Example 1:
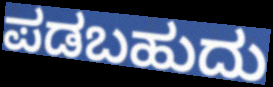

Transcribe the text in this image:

ಪಡಬಹುದು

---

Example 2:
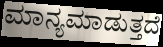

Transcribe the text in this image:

ಮಾನ್ಯಮಾಡುತ್ತದೆ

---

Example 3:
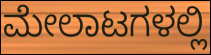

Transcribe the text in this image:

ಮೇಲಾಟಗಳಲ್ಲಿ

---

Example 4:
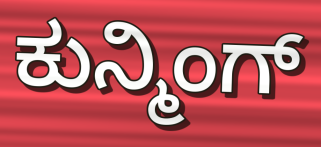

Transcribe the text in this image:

ಕುನ್ಮಿಂಗ್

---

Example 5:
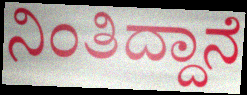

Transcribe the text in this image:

ನಿಂತಿದ್ದಾನೆ